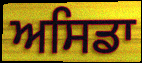
ਅਸਿਡਾ